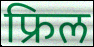
फ्रिल